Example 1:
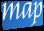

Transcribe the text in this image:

map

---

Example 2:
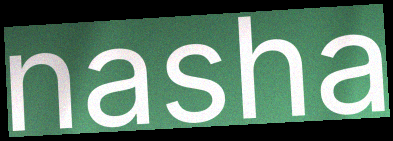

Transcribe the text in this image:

nasha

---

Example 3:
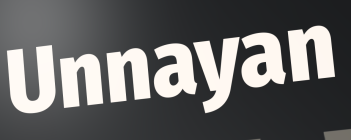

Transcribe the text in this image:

Unnayan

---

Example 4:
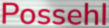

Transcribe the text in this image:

Possehl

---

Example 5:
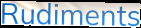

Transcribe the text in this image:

Rudiments